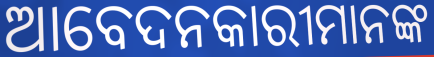
ଆବେଦନକାରୀମାନଙ୍କ